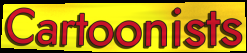
Cartoonists